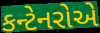
કન્ટેનરોએ